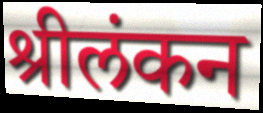
श्रीलंकन